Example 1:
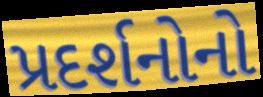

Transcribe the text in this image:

પ્રદર્શનોનો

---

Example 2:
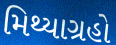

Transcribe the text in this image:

મિથ્યાગ્રહો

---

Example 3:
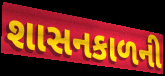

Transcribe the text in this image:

શાસનકાળની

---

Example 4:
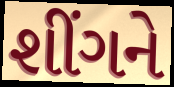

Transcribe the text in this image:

શીંગને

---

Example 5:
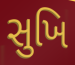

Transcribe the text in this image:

સુખિ